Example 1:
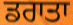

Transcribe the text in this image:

ਡਰਾਤਾ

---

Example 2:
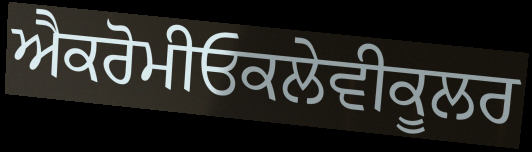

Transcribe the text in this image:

ਐਕਰੋਮੀਓਕਲੇਵੀਕੂਲਰ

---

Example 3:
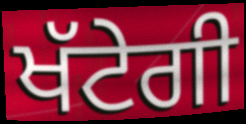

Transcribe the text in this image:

ਖੱਟੇਗੀ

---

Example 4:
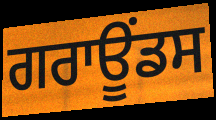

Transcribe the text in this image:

ਗਰਾਊਂਡਸ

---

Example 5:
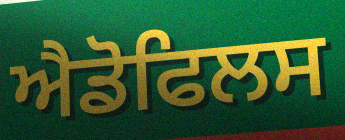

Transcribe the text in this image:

ਐਡੋਫਿਲਸ